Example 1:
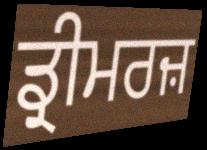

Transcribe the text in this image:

ਡ੍ਰੀਮਰਜ਼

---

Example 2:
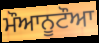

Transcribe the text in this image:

ਮੌਆਨੂਟੌਆ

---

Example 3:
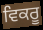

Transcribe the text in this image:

ਵਿਕਰੂ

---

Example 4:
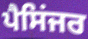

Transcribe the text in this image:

ਪੈਸਿਂਜਰ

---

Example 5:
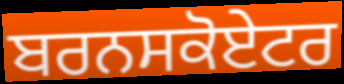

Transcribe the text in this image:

ਬਰਨਸਕੋਏਟਰ